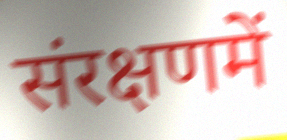
संरक्षणमें